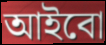
আইবো